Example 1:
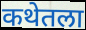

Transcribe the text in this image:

कथेतला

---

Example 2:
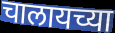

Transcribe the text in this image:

चालायच्या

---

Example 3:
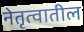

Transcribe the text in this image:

नेतृत्वातील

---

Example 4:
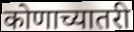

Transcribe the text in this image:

कोणाच्यातरी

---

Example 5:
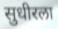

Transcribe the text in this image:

सुधीरला